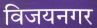
विजयनगर